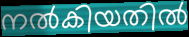
നൽകിയതിൽ